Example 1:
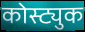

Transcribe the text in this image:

कोस्ट्युक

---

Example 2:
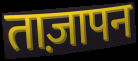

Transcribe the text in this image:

ताज़ापन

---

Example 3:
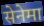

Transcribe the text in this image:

सेनेमा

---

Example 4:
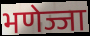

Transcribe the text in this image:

भणेज्जा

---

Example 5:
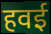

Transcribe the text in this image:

हवई